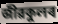
জীৱকুলৰ